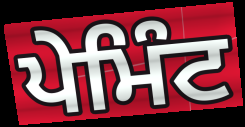
ਪੇਮਿੰਟ